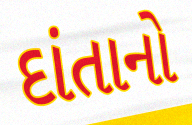
દાંતાનો